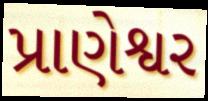
પ્રાણેશ્વર